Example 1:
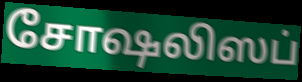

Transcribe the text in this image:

சோஷலிஸப்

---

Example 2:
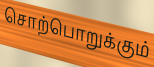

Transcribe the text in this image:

சொற்பொறுக்கும்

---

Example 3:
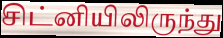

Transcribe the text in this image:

சிட்னியிலிருந்து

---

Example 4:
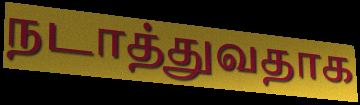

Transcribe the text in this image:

நடாத்துவதாக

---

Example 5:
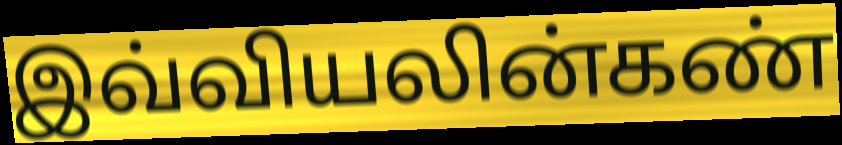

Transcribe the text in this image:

இவ்வியலின்கண்